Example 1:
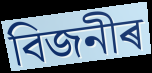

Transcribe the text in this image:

বিজনীৰ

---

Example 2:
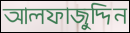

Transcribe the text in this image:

আলফাজুদ্দিন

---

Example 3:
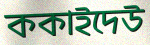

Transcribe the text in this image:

ককাইদেউ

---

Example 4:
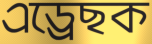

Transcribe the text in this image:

এড্ৰেছক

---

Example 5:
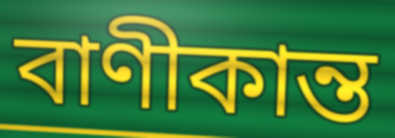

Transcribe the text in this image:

বাণীকান্ত